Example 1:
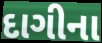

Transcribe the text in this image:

દાગીના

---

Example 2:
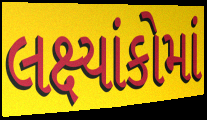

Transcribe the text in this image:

લક્ષ્યાંકોમાં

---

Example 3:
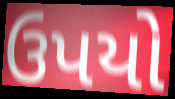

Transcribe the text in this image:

ઉપયો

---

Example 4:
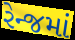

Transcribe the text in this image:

રેન્જમાં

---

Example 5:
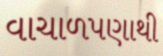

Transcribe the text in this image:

વાચાળપણાથી